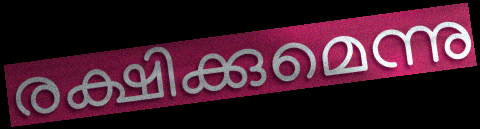
രക്ഷിക്കുമെന്നു